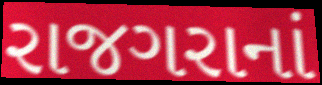
રાજગરાનાં